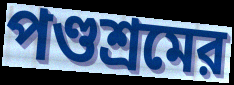
পণ্ডশ্রমের